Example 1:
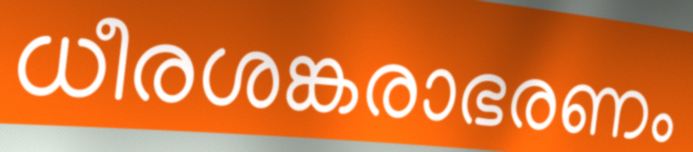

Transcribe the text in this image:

ധീരശങ്കരാഭരണം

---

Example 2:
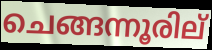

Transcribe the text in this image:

ചെങ്ങന്നൂരില്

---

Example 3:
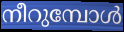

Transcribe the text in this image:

നീറുമ്പോൾ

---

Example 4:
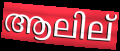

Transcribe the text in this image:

ആലില്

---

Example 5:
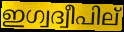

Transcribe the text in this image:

ഇഗ്വദ്വീപില്